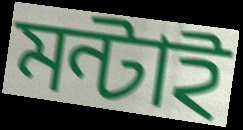
মন্টাই